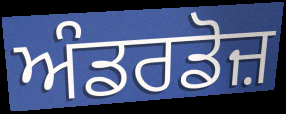
ਅੰਡਰਡੋਜ਼